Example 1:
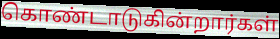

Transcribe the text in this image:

கொண்டாடுகின்றார்கள்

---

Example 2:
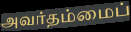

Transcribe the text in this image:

அவர்தம்மைப்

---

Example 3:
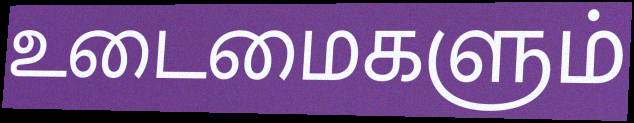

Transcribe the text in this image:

உடைமைகளும்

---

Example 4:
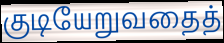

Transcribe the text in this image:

குடியேறுவதைத்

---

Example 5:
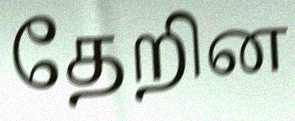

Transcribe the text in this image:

தேறின